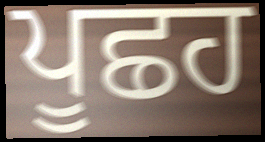
ਪੂਛਹ